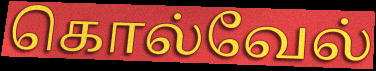
கொல்வேல்